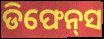
ଡିଫେନ୍‌ସ